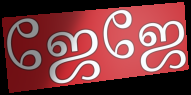
ஜேஜே